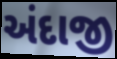
અંદાજી